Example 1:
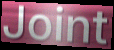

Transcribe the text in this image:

Joint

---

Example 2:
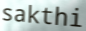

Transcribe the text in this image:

sakthi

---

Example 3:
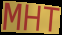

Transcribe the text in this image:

MHT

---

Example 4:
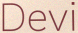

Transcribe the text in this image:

Devi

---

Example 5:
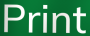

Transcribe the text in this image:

Print